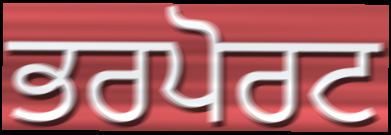
ਭਰਪੋਰਟ